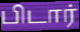
பிடார்